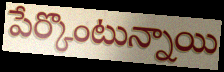
పేర్కొంటున్నాయి